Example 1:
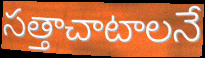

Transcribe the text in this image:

సత్తాచాటాలనే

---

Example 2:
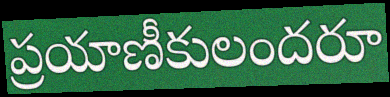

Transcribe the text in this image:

ప్రయాణీకులందరూ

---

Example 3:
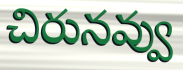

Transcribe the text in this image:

చిరునవ్వు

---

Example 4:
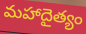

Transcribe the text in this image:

మహాదైత్యం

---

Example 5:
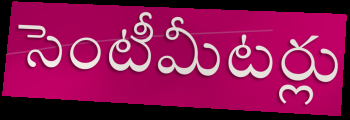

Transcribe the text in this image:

సెంటీమీటర్లు